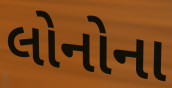
લોનોના